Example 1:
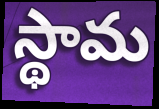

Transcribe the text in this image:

స్థామ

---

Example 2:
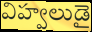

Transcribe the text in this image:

విహ్వలుడై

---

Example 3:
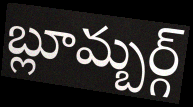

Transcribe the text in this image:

బ్లూమ్బర్గ్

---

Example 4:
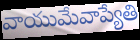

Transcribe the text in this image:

వాయుమేవాప్యేతి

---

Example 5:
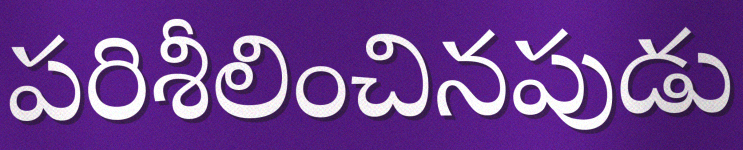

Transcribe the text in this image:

పరిశీలించినపుడు